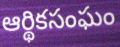
ఆర్థికసంఘం